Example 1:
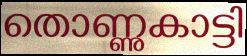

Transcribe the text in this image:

തൊണ്ണുകാട്ടി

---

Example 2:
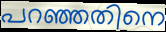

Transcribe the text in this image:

പറഞ്ഞതിനെ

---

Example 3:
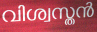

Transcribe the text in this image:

വിശ്വസ്തൻ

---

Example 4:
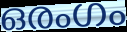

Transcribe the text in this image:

ഒരംഗം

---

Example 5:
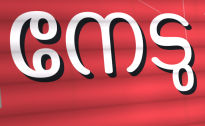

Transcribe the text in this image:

നേടു